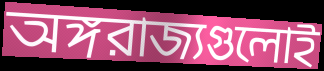
অঙ্গরাজ্যগুলোই